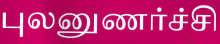
புலனுணர்ச்சி